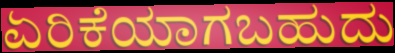
ಏರಿಕೆಯಾಗಬಹುದು